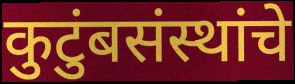
कुटुंबसंस्थांचे